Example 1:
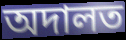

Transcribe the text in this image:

অদালত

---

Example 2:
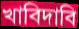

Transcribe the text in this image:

খাবিদাবি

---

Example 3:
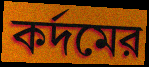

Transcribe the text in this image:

কর্দমের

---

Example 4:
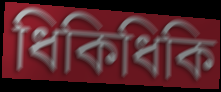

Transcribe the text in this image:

ধিকিধিকি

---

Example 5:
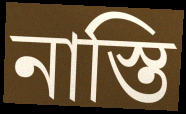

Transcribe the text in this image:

নাস্তি